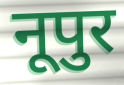
नूपुर